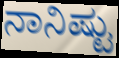
ನಾನಿಷ್ಟು